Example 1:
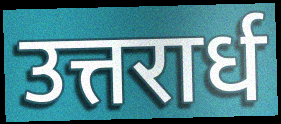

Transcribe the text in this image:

उत्तरार्ध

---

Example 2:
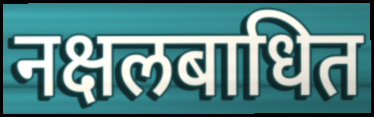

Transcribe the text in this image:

नक्षलबाधित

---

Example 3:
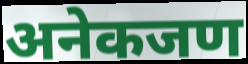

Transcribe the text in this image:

अनेकजण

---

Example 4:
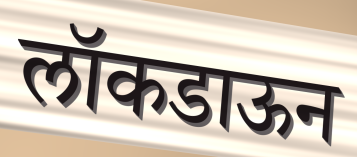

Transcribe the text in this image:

लॉकडाऊन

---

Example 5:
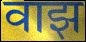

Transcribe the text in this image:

वाझ